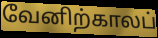
வேனிற்காலப்